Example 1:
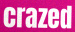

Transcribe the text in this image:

crazed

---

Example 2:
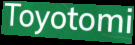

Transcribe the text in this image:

Toyotomi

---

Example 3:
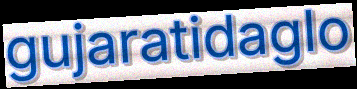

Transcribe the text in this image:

gujaratidaglo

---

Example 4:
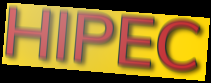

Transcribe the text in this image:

HIPEC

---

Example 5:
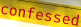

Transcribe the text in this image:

confessed